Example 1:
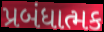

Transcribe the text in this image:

પ્રબંધાત્મક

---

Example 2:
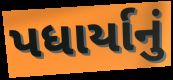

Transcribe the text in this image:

પધાર્યાનું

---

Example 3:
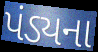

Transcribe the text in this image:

પંડ્યના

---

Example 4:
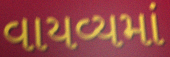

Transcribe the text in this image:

વાયવ્યમાં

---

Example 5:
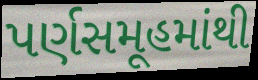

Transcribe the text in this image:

પર્ણસમૂહમાંથી